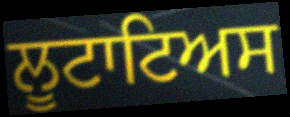
ਲੂਟਾਟਿਅਸ